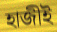
হাজীই